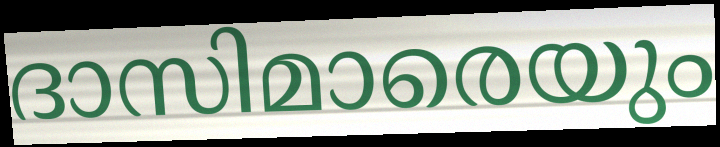
ദാസിമാരെയും